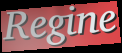
Regine